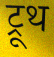
ट्रूथ